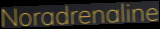
Noradrenaline